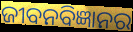
ଜୀବନବିଜ୍ଞାନର